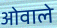
ओवाले